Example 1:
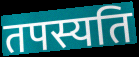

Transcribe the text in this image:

तपस्यति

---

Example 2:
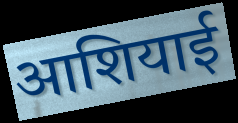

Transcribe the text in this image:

आशियाई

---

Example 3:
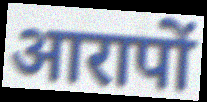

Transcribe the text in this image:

आरापों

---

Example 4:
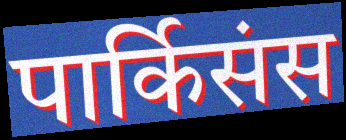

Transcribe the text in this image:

पार्किसंस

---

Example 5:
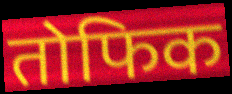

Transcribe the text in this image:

तोफिक